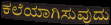
ಕಲೆಯಾಗಿಸುವುದು